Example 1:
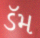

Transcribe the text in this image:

ડૅમ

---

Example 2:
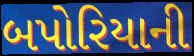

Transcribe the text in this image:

બપોરિયાની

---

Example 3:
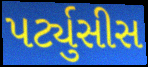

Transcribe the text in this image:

પર્ટ્યુસીસ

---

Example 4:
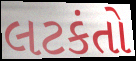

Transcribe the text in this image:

લટકંતો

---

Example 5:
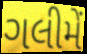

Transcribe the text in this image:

ગલીમેં